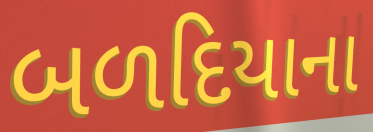
બળદિયાના